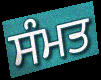
ਸੰਮਤ